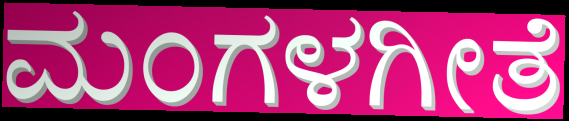
ಮಂಗಳಗೀತೆ